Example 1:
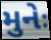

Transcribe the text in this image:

મુનેઃ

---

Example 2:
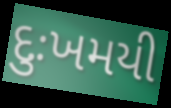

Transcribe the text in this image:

દુઃખમયી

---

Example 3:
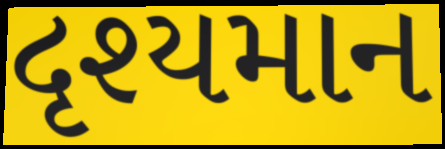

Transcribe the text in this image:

દૃશ્યમાન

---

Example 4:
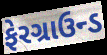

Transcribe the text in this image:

ફેરગ્રાઉન્ડ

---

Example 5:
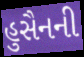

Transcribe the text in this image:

હુસૈનની